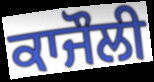
ਕਾਜੌਲੀ